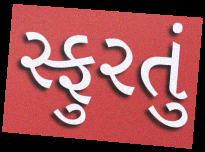
સ્ફુરતું